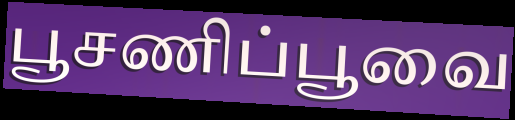
பூசணிப்பூவை